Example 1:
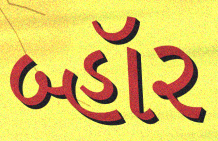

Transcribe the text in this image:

બ્હૉર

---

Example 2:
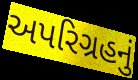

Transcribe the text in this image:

અપરિગ્રહનું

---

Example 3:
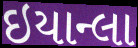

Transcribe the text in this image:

ઇયાન્લા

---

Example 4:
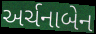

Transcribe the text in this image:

અર્ચનાબેન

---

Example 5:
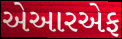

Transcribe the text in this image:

એઆરએફ